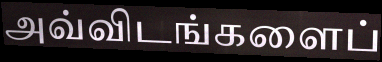
அவ்விடங்களைப்